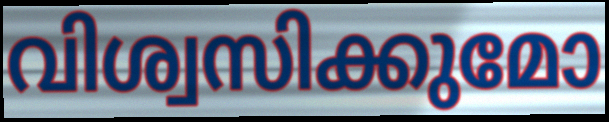
വിശ്വസിക്കുമോ